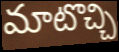
మాటొచ్చి